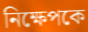
নিক্ষেপকে